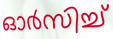
ഓർസിച്ച്